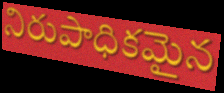
నిరుపాధికమైన